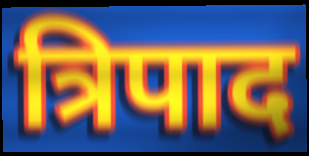
त्रिपाद